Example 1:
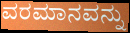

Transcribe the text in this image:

ವರಮಾನವನ್ನು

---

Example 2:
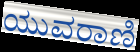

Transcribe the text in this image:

ಯುವರಾಣಿ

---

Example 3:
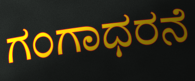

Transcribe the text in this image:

ಗಂಗಾಧರನೆ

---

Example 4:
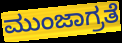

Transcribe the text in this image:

ಮುಂಜಾಗ್ರತೆ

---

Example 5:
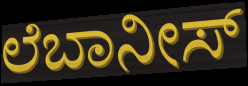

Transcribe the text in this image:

ಲೆಬಾನೀಸ್